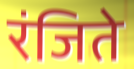
रंजिते